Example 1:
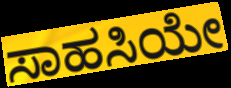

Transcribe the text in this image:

ಸಾಹಸಿಯೇ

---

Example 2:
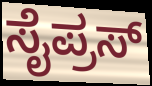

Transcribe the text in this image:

ಸೈಪ್ರಸ್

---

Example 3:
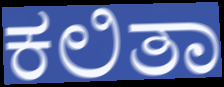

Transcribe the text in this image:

ಕಲಿತಾ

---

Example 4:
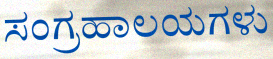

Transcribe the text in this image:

ಸಂಗ್ರಹಾಲಯಗಳು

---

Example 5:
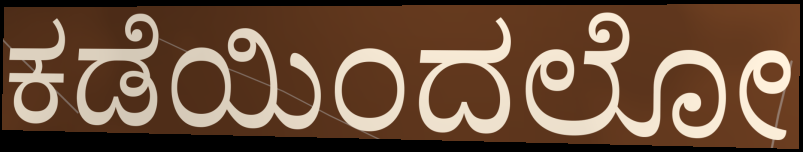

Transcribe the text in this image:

ಕಡೆಯಿಂದಲೋ